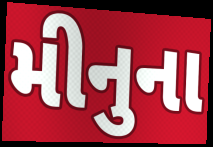
મીનુના